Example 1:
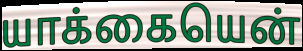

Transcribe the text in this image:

யாக்கையென்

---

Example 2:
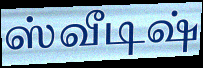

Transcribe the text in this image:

ஸ்வீடிஷ்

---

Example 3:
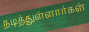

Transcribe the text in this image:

நடித்துள்ளார்கள்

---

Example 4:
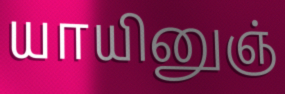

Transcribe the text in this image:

யாயினுஞ்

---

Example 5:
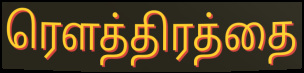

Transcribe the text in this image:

ரௌத்திரத்தை